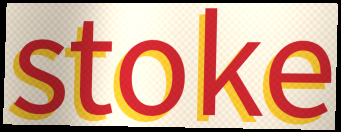
stoke